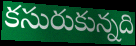
కసురుకున్నది